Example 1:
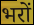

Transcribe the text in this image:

भरों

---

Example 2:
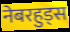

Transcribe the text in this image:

नेबरहुड्स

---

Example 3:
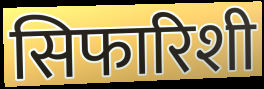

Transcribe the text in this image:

सिफारिशी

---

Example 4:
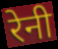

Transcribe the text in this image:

रेनी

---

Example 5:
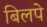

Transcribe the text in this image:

बिलपे